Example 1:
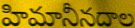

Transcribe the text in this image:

హిమానీనదాల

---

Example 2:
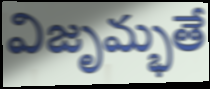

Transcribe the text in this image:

విజృమ్భతే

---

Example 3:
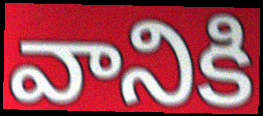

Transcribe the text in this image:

వానికి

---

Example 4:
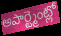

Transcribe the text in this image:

అపార్ట్మెంట్లో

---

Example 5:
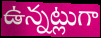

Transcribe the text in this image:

ఉన్నట్లుగా